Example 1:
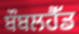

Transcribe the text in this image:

ਬੌਬਲਹੈੱਡ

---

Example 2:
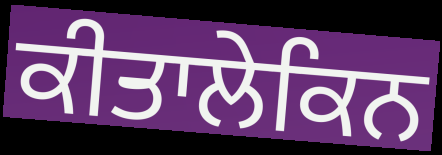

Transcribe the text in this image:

ਕੀਤਾਲੇਕਿਨ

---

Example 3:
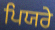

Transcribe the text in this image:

ਪਿਯਰੇ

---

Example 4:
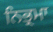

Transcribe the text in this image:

ਨਿਭ੍ਰਮਾ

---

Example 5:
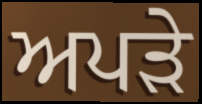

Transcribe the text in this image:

ਅਪੜੇ